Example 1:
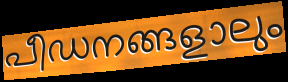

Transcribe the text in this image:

പീഡനങ്ങളാലും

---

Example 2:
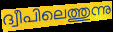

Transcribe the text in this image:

ദ്വീപിലെത്തുന്നു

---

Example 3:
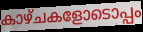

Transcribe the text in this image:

കാഴ്ചകളോടൊപ്പം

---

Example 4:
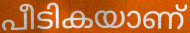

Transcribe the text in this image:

പീടികയാണ്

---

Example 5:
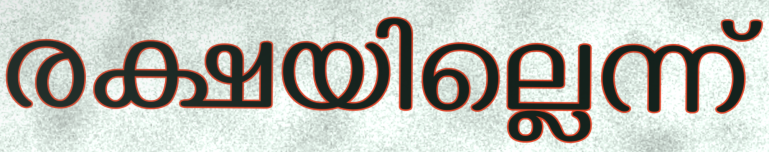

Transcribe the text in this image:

രക്ഷയില്ലെന്ന്